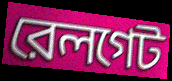
রেলগেট